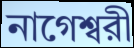
নাগেশ্বরী